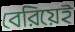
বেরিয়েই